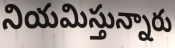
నియమిస్తున్నారు